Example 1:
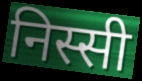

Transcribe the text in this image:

निस्सी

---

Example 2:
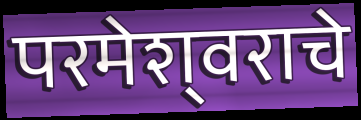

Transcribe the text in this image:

परमेश्वराचे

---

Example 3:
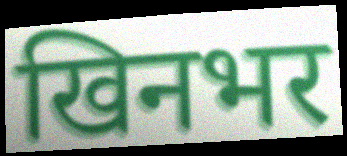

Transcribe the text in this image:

खिनभर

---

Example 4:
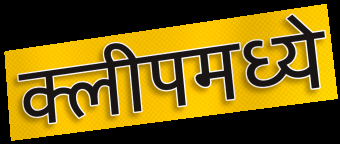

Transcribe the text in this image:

क्लीपमध्ये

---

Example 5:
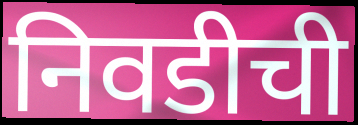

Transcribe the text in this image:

निवडीची